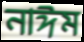
নাঈম